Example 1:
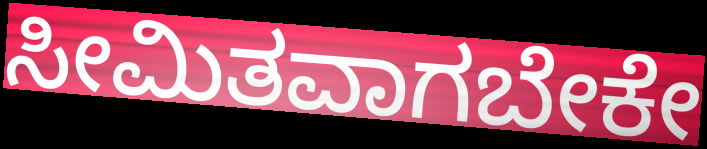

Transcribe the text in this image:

ಸೀಮಿತವಾಗಬೇಕೇ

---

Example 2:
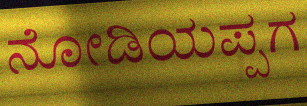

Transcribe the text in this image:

ನೋಡಿಯಪ್ಪಗ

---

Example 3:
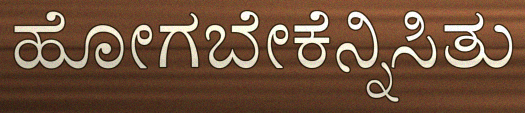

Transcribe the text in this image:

ಹೋಗಬೇಕೆನ್ನಿಸಿತು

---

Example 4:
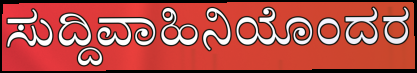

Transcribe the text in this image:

ಸುದ್ದಿವಾಹಿನಿಯೊಂದರ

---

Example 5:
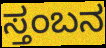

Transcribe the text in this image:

ಸ್ತಂಬನ